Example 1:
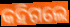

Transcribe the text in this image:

କହିଗଲେ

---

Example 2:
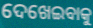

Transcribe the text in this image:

ଦେଖେଇବାକୁ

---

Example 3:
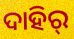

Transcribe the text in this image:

ଦାହିର୍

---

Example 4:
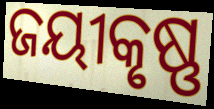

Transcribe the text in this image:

ଜୟୀକୃଷ୍ଣ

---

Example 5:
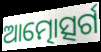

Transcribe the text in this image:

ଆତ୍ମୋତ୍ସର୍ଗ